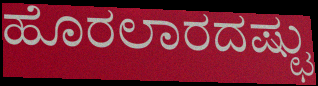
ಹೊರಲಾರದಷ್ಟು